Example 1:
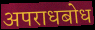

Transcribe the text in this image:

अपराधबोध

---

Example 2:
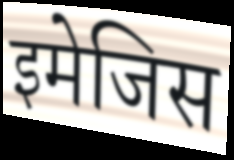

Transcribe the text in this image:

इमेजिस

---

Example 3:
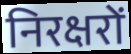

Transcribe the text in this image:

निरक्षरों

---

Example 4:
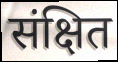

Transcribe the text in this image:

संक्षित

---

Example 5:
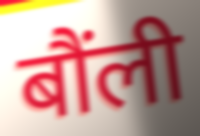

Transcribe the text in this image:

बौंली